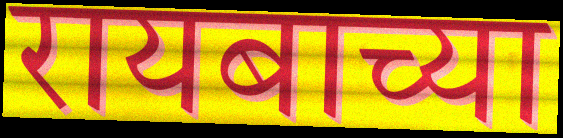
रायबाच्या